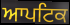
ਆਪਟਿਕ